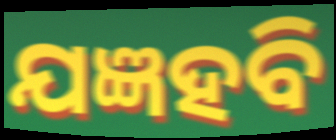
ଯଜ୍ଞହବି